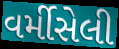
વર્મીસેલી